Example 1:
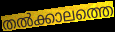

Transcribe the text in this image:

തൽക്കാലത്തെ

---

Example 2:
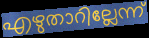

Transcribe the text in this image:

എഴുതാറില്ലേന്ന്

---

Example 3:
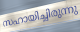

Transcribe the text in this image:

സഹായിച്ചിരുന്നു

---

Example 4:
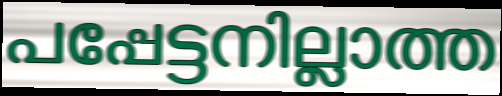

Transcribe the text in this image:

പപ്പേട്ടനില്ലാത്ത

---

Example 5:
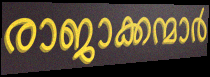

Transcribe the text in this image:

രാജാക്കന്മാർ